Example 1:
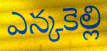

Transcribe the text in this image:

ఎన్కకెల్లి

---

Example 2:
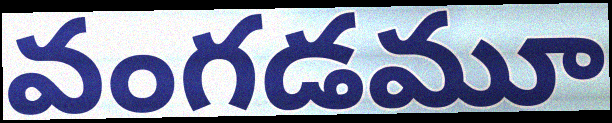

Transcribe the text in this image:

వంగడమూ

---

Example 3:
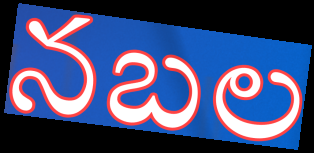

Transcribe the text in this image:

నబల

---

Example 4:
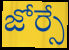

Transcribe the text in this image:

జోర్సే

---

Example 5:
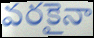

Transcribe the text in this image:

వరకైనా